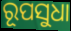
ରୂପସୁଧା